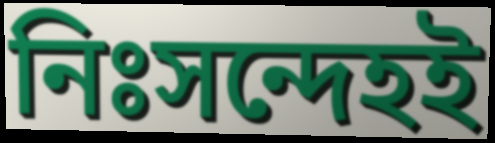
নিঃসন্দেহই